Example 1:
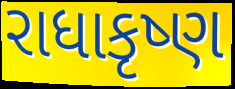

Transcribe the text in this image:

રાધાકૃષ્ણ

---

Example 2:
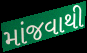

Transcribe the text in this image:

માંજવાથી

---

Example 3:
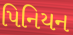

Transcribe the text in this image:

પિનિયન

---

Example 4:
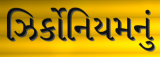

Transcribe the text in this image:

ઝિર્કોનિયમનું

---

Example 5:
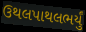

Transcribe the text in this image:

ઉથલપાથલભર્યું